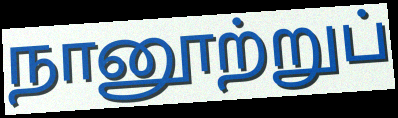
நானூற்றுப்